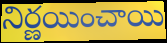
నిర్ణయించాయి